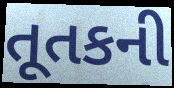
તૂતકની